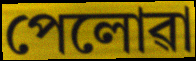
পেলোৱা